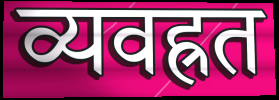
व्यवह्रत